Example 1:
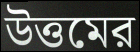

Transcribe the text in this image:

উত্তমের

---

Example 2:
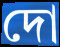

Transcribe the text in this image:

দো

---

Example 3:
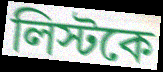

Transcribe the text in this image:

লিস্টকে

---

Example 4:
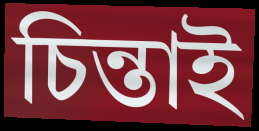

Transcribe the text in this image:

চিন্তাই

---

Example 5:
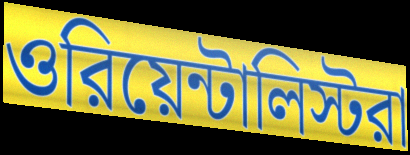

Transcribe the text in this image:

ওরিয়েন্টালিস্টরা